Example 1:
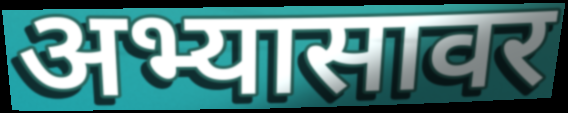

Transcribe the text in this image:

अभ्यासावर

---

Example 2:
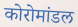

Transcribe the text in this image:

कोरोमांडल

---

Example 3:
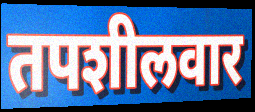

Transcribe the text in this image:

तपशीलवार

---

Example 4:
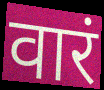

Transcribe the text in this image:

वारं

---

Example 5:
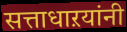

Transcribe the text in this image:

सत्ताधाऱयांनी